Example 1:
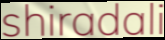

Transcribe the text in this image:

shiradali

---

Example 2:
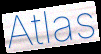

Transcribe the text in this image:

Atlas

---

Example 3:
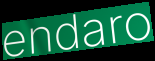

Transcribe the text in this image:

endaro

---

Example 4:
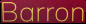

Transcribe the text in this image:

Barron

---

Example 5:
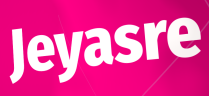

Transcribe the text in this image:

Jeyasre